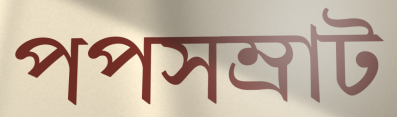
পপসম্রাট